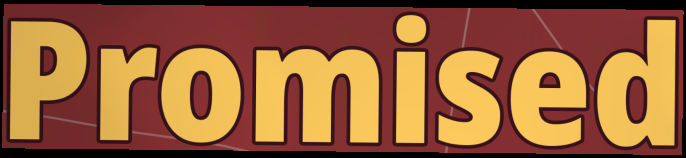
Promised